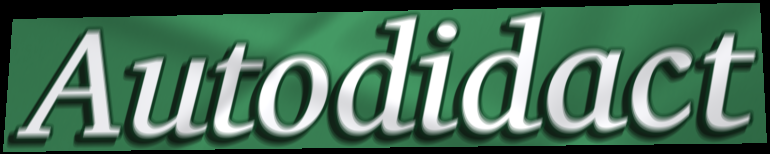
Autodidact